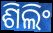
ଶିଲିଂ